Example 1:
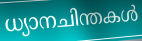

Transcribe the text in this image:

ധ്യാനചിന്തകൾ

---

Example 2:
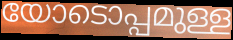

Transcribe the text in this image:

യോടൊപ്പമുള്ള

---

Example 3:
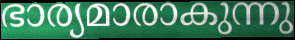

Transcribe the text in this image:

ഭാര്യമാരാകുന്നു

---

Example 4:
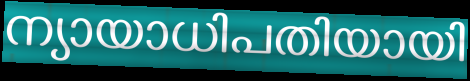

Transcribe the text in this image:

ന്യായാധിപതിയായി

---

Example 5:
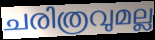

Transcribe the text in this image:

ചരിത്രവുമല്ല